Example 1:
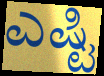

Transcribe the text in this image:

ಎಷ್ಟಿ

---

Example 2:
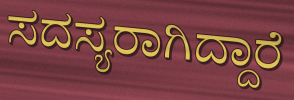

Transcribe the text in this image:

ಸದಸ್ಯರಾಗಿದ್ದಾರೆ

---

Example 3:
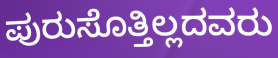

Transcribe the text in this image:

ಪುರುಸೊತ್ತಿಲ್ಲದವರು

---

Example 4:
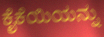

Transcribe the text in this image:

ಕೈಕೆಯಿಯನ್ನು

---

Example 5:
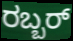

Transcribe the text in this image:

ರಬ್ಬರ್